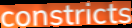
constricts